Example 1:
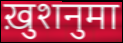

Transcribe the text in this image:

ख़ुशनुमा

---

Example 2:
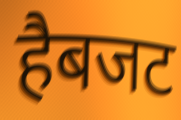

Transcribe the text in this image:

हैबजट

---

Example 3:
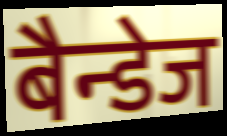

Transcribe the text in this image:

बैन्डेज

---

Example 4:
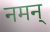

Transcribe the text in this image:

नमन्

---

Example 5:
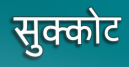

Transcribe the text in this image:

सुक्कोट